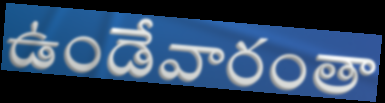
ఉండేవారంతా